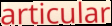
articular